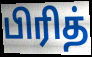
பிரித்